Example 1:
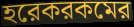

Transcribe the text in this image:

হরেকরকমের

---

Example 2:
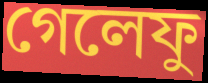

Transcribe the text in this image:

গেলেফু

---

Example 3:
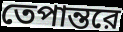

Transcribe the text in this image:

তেপান্তরে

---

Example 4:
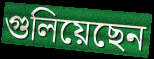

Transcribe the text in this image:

গুলিয়েছেন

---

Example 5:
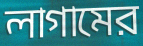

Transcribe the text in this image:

লাগামের